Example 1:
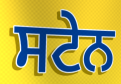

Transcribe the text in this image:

ਸਟੇਨ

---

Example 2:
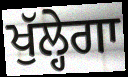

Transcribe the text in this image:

ਖੁੱਲ੍ਹੇਗਾ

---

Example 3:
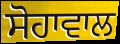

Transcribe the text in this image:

ਸੋਹਾਵਾਲ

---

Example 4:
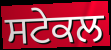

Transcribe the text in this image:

ਸਟੇਕਲ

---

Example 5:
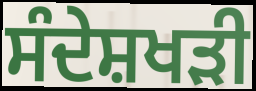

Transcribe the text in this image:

ਸੰਦੇਸ਼ਖੜੀ